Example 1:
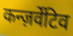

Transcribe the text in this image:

कन्ज़र्वेटिव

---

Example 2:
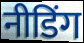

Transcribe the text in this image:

नीडिंग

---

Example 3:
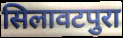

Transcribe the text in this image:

सिलावटपुरा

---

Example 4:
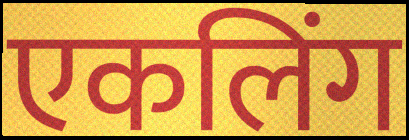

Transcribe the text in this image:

एकलिंग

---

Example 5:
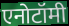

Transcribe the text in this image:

एनोटॉमी